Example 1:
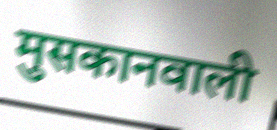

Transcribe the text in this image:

मुसकानवाली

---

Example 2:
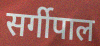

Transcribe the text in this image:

सर्गीपाल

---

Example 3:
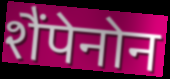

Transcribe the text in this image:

शैंपेनोन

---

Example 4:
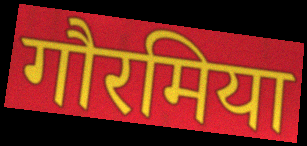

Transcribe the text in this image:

गौरमिया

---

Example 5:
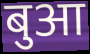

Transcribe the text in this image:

बुआ